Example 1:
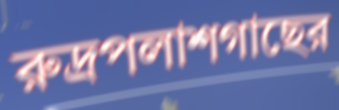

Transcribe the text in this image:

রুদ্রপলাশগাছের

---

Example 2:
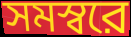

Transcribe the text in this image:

সমস্বরে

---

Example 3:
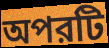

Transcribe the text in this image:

অপরটি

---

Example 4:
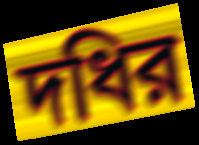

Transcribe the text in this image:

দধির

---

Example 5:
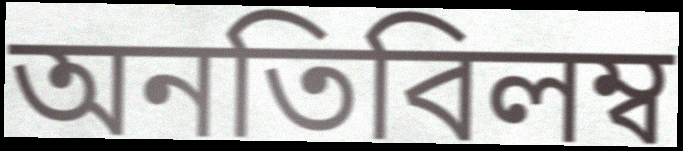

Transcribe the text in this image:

অনতিবিলম্ব